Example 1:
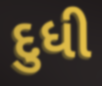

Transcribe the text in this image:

દુધી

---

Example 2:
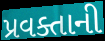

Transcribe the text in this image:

પ્રવક્તાની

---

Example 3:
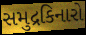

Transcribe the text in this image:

સમુદ્રકિનારો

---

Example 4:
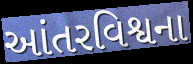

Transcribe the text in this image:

આંતરવિશ્વના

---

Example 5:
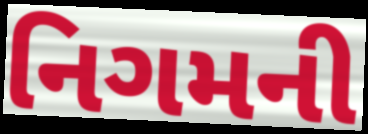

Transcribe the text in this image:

નિગમની